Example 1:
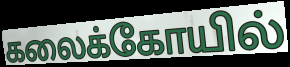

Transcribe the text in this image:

கலைக்கோயில்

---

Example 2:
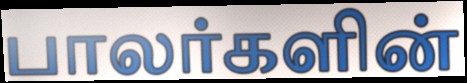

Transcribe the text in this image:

பாலர்களின்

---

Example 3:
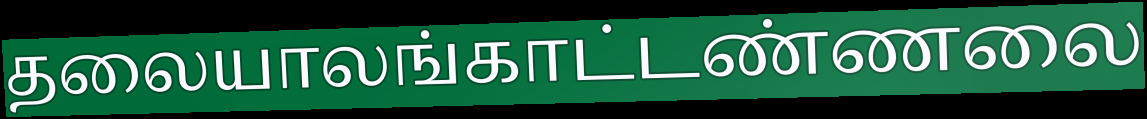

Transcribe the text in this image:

தலையாலங்காட்டண்ணலை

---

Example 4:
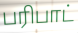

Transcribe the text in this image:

பரிபாட்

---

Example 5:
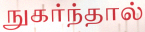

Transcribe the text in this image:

நுகர்ந்தால்